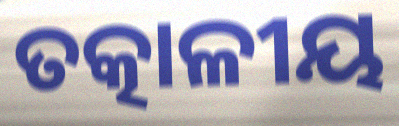
ତତ୍କାଳୀୟ